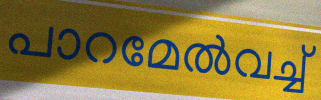
പാറമേൽവച്ച്